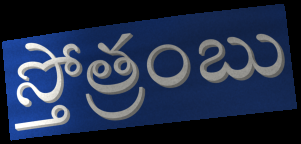
స్తోత్రంబు